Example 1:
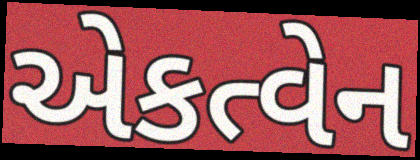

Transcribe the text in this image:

એકત્વેન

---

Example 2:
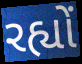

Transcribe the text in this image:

રહ્યોં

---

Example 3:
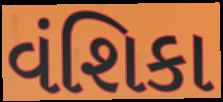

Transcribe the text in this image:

વંશિકા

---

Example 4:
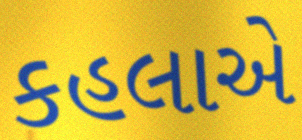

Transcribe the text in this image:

કહલાએ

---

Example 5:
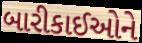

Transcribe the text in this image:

બારીકાઈઓને